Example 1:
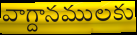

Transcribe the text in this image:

వాగ్దానములకు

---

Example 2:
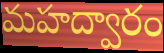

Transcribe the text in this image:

మహద్వారం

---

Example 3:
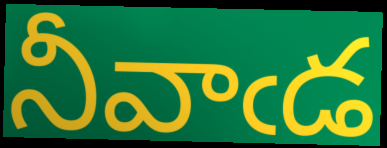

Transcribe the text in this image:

నీవాఁడ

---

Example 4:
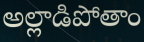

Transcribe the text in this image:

అల్లాడిపోతాం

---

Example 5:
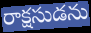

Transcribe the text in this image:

రాక్షసుడను